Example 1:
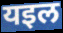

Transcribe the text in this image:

यइल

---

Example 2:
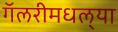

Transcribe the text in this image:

गॅलरीमधल्या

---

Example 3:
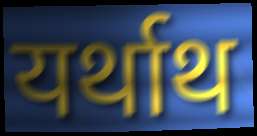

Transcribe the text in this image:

यर्थाथ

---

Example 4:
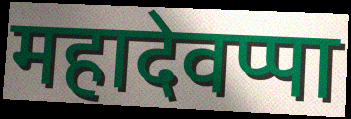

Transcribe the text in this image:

महादेवप्पा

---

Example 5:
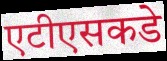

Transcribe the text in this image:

एटीएसकडे